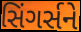
સિંગર્સને